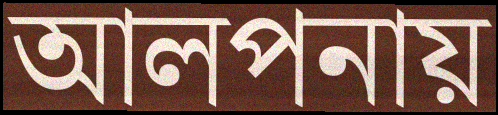
আলপনায়